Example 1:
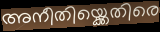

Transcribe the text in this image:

അനീതിയ്ക്കെതിരെ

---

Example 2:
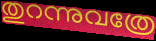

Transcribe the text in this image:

തുറന്നുവത്രേ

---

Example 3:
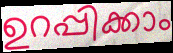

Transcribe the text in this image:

ഉറപ്പിക്കാം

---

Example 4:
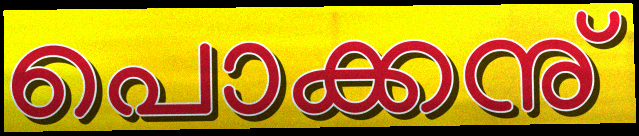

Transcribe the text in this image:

പൊക്കനു്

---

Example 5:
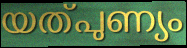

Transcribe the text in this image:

യത്പുണ്യം